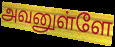
அவனுள்ளே